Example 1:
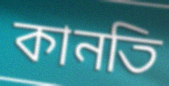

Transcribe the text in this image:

কানতি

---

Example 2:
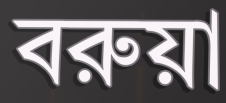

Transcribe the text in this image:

বরুয়া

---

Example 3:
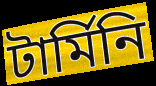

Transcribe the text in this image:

টার্মিনি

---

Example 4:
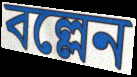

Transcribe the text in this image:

বল্লেন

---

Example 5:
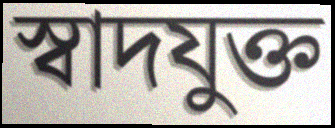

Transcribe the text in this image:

স্বাদযুক্ত